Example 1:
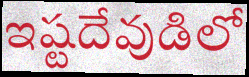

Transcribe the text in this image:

ఇష్టదేవుడిలో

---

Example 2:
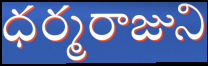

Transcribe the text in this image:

ధర్మరాజుని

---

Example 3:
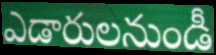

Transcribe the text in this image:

ఎడారులనుండీ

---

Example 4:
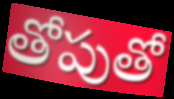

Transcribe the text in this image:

తోపుతో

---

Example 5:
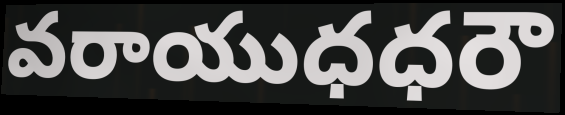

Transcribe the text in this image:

వరాయుధధరౌ